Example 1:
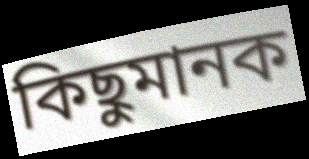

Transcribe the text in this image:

কিছুমানক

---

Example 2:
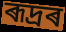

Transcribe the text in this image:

ৰূদ্ৰৰ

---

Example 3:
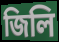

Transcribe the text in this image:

জিলি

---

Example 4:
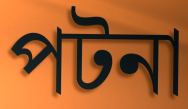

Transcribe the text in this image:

পটনা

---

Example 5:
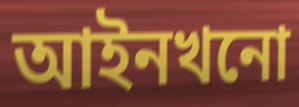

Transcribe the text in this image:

আইনখনো